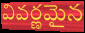
వివర్ణమైన